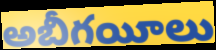
అబీగయీలు